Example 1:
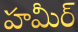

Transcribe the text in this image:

హమీర్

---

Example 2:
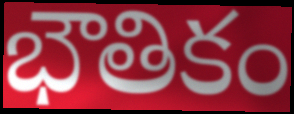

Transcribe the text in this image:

భౌతికం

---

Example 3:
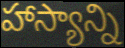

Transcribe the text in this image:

హాస్యాన్ని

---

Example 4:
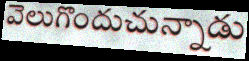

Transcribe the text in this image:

వెలుగొందుచున్నాడు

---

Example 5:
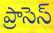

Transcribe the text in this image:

ప్రాసెస్